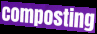
composting